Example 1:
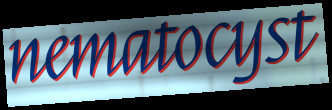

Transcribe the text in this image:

nematocyst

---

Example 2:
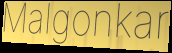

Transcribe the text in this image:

Malgonkar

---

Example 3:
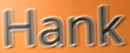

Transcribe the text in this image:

Hank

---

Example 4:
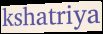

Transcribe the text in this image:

kshatriya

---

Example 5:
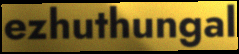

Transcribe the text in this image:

ezhuthungal